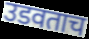
उडवताच